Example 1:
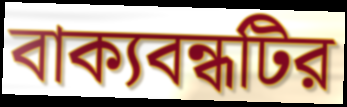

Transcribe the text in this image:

বাক্যবন্ধটির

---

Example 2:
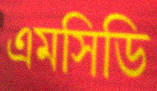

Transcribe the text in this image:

এমসিডি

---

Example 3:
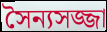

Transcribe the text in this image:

সৈন্যসজ্জা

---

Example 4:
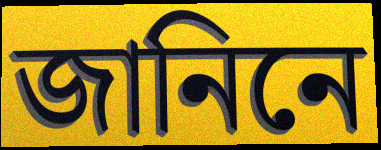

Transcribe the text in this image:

জানিনে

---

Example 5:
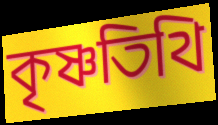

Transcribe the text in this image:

কৃষ্ণতিথি